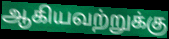
ஆகியவற்றுக்கு